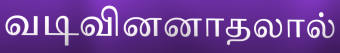
வடிவினனாதலால்